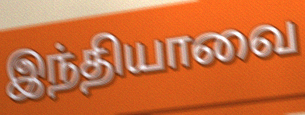
இந்தியாவை